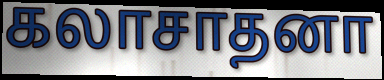
கலாசாதனா